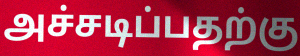
அச்சடிப்பதற்கு